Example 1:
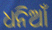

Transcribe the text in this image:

ଧନିଆଁ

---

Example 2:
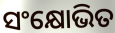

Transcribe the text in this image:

ସଂକ୍ଷୋଭିତ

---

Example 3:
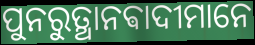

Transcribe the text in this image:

ପୁନରୁତ୍ଥାନଵାଦୀମାନେ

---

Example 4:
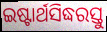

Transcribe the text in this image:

ଇଷ୍ଟାର୍ଥସିଦ୍ଧରସ୍ତୁ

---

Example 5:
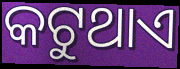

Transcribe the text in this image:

କଟୁଥାଏ